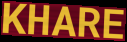
KHARE